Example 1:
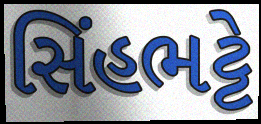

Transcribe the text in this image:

સિંહભટ્ટે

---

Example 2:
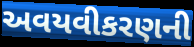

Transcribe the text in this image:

અવયવીકરણની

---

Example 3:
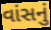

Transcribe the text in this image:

વાંસનું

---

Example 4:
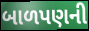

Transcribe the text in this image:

બાળપણની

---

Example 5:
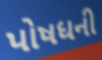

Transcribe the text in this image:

પોષધની